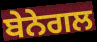
ਬੇਨੇਗਲ